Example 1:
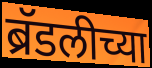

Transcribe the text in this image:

ब्रॅडलीच्या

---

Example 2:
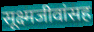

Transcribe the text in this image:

सूक्ष्मजीवांसह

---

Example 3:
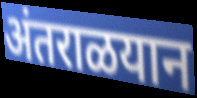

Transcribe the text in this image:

अंतराळयान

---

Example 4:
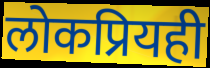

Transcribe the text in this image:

लोकप्रियही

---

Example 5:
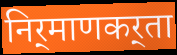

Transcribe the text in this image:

निर्माणकर्ता